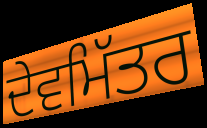
ਦੇਵਮਿੱਤਰ